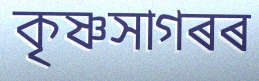
কৃষ্ণসাগৰৰ